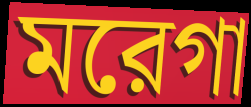
মরেগা